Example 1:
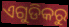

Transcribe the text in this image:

ଏଗୁଡିକରୁ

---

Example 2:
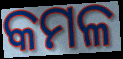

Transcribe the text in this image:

କମଳ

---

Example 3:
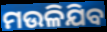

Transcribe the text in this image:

ମଉଳିଯିବ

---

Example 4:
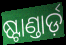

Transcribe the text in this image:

ଷ୍ଟାଣ୍ତାର୍ଡ଼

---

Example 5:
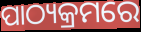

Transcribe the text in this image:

ପାଠ୍ୟକ୍ରମରେ